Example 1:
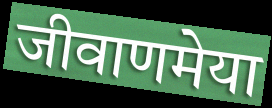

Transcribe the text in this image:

जीवाणमेया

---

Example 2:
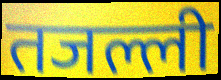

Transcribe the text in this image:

तजल्ली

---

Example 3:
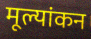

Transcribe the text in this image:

मूल्यांकन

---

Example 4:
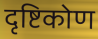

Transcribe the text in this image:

दृष्टिकोण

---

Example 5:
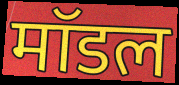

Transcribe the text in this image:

मॉडल